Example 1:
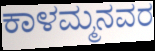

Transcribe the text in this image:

ಕಾಳಮ್ಮನವರ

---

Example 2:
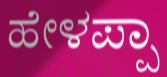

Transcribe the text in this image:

ಹೇಳಪ್ಪಾ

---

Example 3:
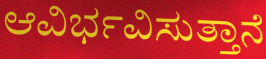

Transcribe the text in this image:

ಆವಿರ್ಭವಿಸುತ್ತಾನೆ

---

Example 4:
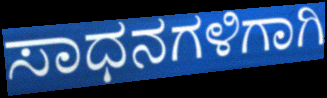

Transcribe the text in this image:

ಸಾಧನಗಳಿಗಾಗಿ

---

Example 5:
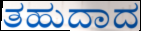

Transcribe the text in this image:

ತಹುದಾದ